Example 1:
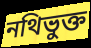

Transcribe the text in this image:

নথিভুক্ত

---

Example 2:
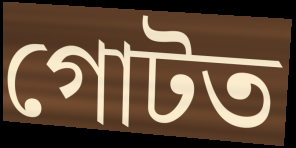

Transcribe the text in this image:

গোটত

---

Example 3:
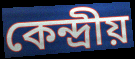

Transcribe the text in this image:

কেন্দ্ৰীয়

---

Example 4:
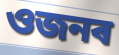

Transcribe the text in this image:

ওজনৰ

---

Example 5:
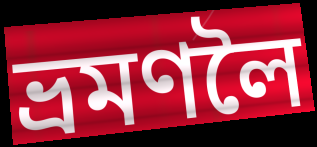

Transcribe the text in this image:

ভ্ৰমণলৈ